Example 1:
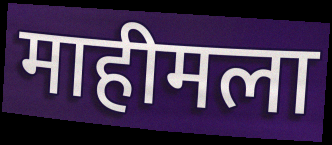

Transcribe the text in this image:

माहीमला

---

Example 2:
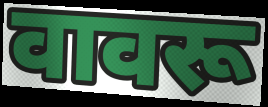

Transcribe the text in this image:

वावरू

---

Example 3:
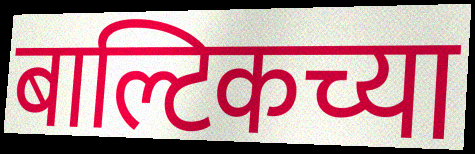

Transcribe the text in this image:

बाल्टिकच्या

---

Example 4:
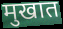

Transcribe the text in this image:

मुखात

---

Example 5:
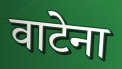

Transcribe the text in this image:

वाटेना